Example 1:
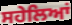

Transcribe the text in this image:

ਸਹੇਲਿਆਂ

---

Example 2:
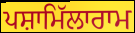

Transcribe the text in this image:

ਪਸ਼ਾਮਿੱਲਾਰਾਮ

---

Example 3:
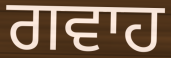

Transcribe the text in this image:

ਗਵਾਹ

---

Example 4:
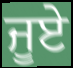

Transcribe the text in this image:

ਜੂਏ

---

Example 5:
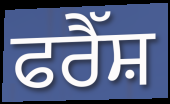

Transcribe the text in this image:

ਫਰੈੱਸ਼